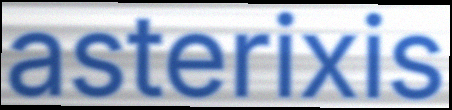
asterixis